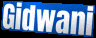
Gidwani